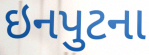
ઇનપુટના